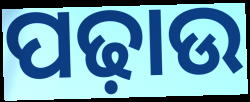
ପଢ଼ାଉ